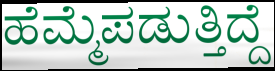
ಹೆಮ್ಮೆಪಡುತ್ತಿದ್ದೆ